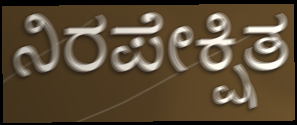
ನಿರಪೇಕ್ಷಿತ